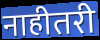
नाहीतरी